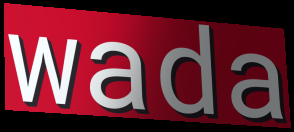
wada